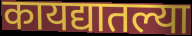
कायद्यातल्या